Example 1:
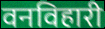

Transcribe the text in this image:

वनविहारी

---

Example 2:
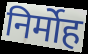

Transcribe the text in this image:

निर्मोह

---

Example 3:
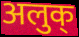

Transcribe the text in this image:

अलुक्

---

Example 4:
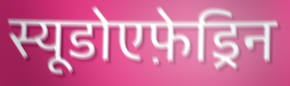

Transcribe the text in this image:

स्यूडोएफ़ेड्रिन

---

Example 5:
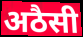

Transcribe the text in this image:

अठैसी